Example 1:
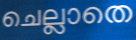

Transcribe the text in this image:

ചെല്ലാതെ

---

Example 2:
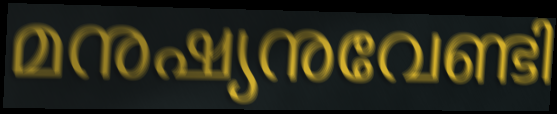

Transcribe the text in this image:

മനുഷ്യനുവേണ്ടി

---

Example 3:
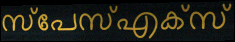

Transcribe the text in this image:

സ്പേസ്എക്സ്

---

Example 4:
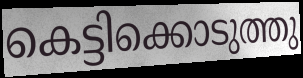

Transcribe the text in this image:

കെട്ടിക്കൊടുത്തു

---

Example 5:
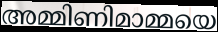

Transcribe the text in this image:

അമ്മിണിമാമ്മയെ